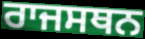
ਰਾਜਸਥਨ